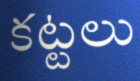
కట్టలు